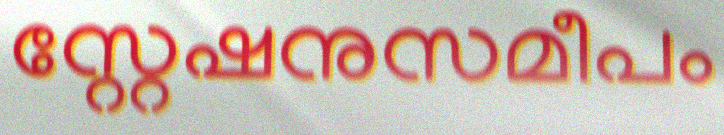
സ്റ്റേഷനുസമീപം